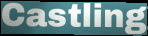
Castling